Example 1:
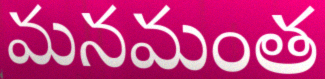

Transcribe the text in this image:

మనమంత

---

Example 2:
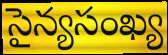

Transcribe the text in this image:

సైన్యసంఖ్య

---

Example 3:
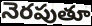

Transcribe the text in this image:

నెరపుతూ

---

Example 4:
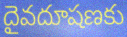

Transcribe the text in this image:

దైవదూషణకు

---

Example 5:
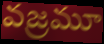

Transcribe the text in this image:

వజ్రమూ